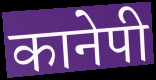
कानेपी